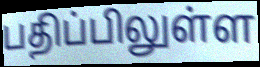
பதிப்பிலுள்ள